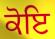
ਕੋਇ